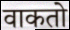
वाकतो